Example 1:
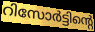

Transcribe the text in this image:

റിസോർട്ടിന്റെ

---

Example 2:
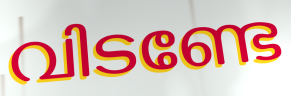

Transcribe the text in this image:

വിടണ്ടേ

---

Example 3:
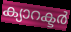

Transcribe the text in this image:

ക്യാറക്ടർ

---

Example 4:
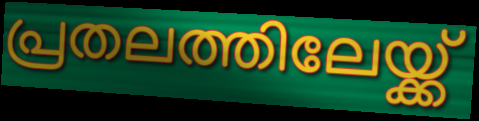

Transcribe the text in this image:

പ്രതലത്തിലേയ്ക്ക്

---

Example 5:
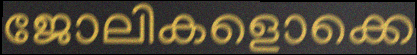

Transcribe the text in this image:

ജോലികളൊക്കെ